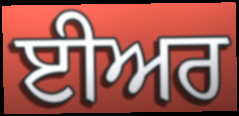
ਈਅਰ